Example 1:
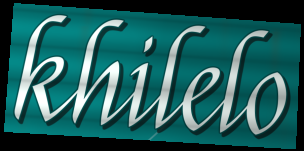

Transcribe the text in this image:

khilelo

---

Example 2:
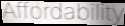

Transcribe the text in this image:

Affordability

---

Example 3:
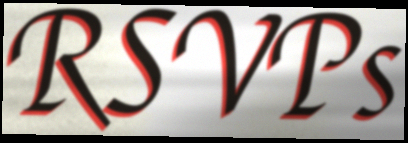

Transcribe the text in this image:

RSVPs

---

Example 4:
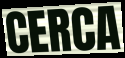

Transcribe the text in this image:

CERCA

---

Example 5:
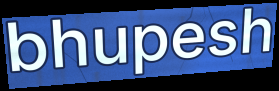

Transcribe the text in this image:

bhupesh